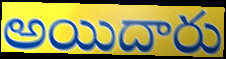
అయిదారు